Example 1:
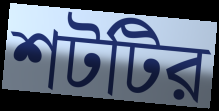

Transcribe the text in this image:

শটটির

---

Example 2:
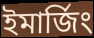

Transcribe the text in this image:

ইমার্জিং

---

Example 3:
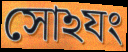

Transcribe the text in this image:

সোঽযং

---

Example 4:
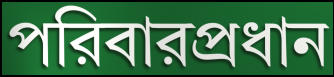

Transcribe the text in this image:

পরিবারপ্রধান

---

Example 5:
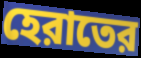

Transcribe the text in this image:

হেরাতের